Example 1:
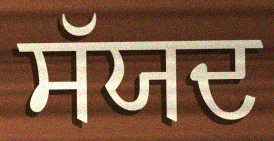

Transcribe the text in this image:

ਸੱਯਦ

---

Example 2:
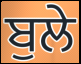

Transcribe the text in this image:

ਬੁਲੇ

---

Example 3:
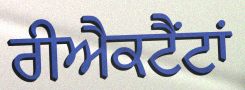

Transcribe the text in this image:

ਰੀਐਕਟੈਂਟਾਂ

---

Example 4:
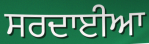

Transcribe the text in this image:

ਸਰਦਾਈਆ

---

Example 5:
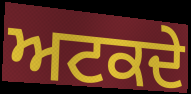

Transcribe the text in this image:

ਅਟਕਦੇ